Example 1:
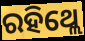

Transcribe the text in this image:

ରହିଥ୍ଲେ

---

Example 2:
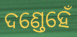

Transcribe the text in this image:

ଦଣ୍ଡେହେଁ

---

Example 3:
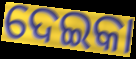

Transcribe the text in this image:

ଦେଇକା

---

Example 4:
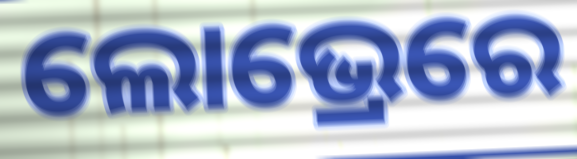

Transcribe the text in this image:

ଲୋଭ୍ରେରେ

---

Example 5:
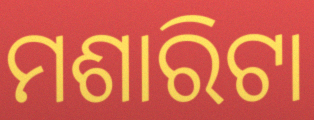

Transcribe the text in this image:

ମଶାରିଟା